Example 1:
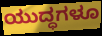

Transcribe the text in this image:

ಯುದ್ಧಗಳೂ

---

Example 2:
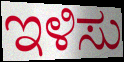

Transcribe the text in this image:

ಇಳಿಸು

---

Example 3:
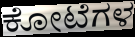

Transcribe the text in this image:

ಕೋಟೆಗಳ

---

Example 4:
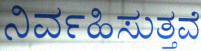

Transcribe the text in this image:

ನಿರ್ವಹಿಸುತ್ತವೆ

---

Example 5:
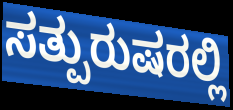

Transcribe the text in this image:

ಸತ್ಪುರುಷರಲ್ಲಿ